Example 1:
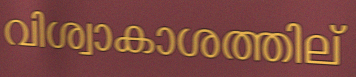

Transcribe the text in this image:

വിശ്വാകാശത്തില്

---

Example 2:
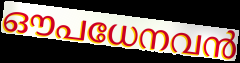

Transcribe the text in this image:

ഔപധേനവൻ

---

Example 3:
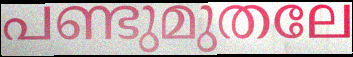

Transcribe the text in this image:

പണ്ടുമുതലേ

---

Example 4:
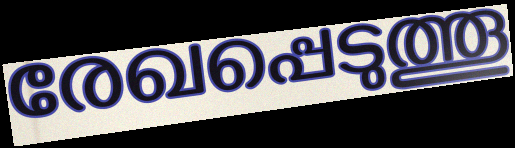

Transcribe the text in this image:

രേഖപ്പെടുത്തൂ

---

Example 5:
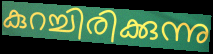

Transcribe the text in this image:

കുറച്ചിരിക്കുന്നു